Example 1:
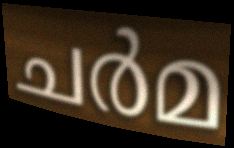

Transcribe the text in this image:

ചർമ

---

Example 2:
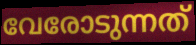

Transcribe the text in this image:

വേരോടുന്നത്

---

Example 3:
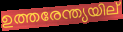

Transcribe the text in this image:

ഉത്തരേന്ത്യയില്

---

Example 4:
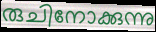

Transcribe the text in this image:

രുചിനോക്കുന്നു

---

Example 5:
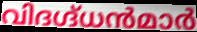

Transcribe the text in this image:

വിദഗ്ദ്ധൻമാർ